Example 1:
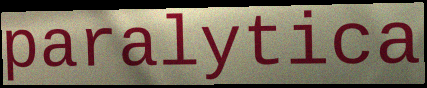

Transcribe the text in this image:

paralytica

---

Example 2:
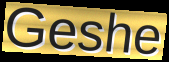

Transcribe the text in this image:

Geshe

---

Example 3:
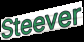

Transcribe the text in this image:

Steever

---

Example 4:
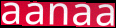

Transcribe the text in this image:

aanaa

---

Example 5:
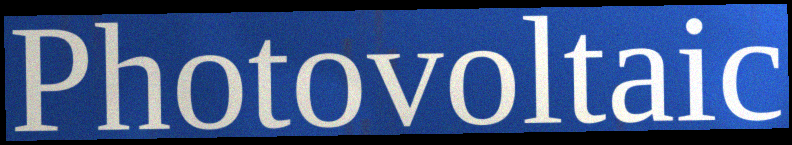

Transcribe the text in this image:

Photovoltaic